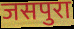
जसपुरा